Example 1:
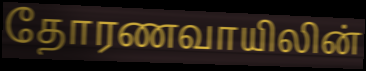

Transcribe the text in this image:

தோரணவாயிலின்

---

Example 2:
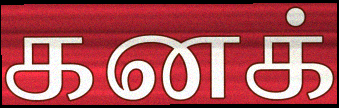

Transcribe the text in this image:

கனக்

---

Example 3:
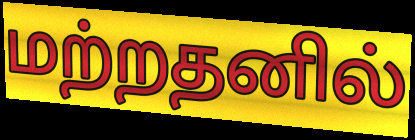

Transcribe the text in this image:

மற்றதனில்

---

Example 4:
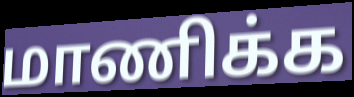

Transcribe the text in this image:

மாணிக்க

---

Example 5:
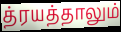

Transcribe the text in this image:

த்ரயத்தாலும்